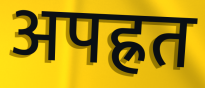
अपह्रत